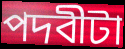
পদবীটা